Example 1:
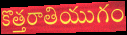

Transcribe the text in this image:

కొత్తరాతియుగం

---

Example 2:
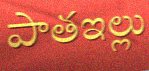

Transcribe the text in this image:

పాతఇల్లు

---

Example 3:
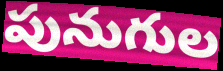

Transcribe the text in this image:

పునుగుల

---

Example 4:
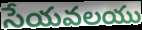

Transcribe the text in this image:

సేయవలయు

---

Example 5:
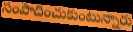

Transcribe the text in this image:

సంపాదించుకుంటున్నారు